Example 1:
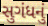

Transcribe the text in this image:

સુગંધનું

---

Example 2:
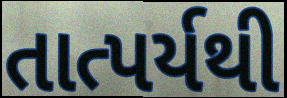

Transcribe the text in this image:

તાત્પર્યથી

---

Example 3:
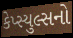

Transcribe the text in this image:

કેપ્સ્યુલ્સનો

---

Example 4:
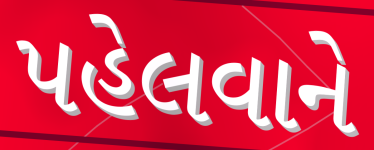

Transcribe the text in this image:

પહેલવાને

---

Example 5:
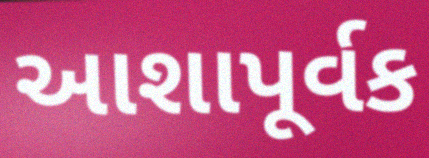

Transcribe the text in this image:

આશાપૂર્વક